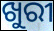
ଖୁରୀ